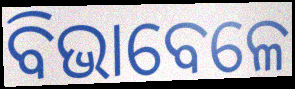
ବିଭାବେଳେ